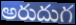
అరుదుగ